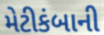
મેટીકંબાની